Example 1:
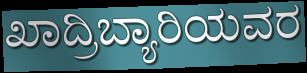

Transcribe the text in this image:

ಖಾದ್ರಿಬ್ಯಾರಿಯವರ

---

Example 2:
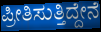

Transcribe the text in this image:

ಪ್ರೀತಿಸುತ್ತಿದ್ದೇನೆ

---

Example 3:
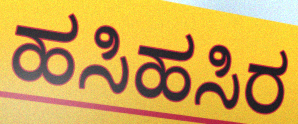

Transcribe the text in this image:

ಹಸಿಹಸಿರ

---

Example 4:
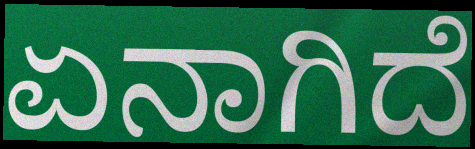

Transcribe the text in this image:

ಏನಾಗಿದೆ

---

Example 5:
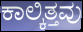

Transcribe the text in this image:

ಕಾಲ್ಕಿತ್ತವು